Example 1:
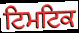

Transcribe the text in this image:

ਟਿਮਟਿਕ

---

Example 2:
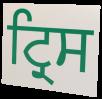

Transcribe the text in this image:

ਟ੍ਰਿਸ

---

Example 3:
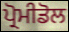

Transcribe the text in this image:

ਪ੍ਰੋਮੀਡੋਲ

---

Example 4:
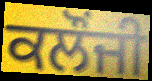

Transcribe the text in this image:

ਕਲੌਂਜੀ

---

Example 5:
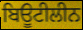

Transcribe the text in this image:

ਬਿਊਟੀਲੀਨ